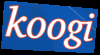
koogi